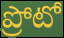
ప్రోటో